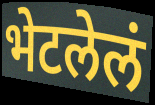
भेटलेलं